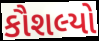
કૌશલ્યો